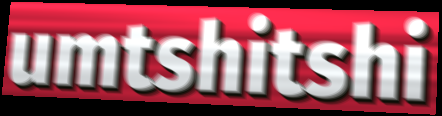
umtshitshi